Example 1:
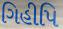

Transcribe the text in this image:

ગિહીપિ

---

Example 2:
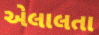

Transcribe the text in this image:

એલાલતા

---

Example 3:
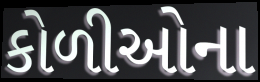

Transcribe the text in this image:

કોળીઓના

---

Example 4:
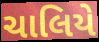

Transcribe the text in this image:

ચાલિયે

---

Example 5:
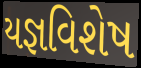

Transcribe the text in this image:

યજ્ઞવિશેષ